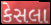
કેસલા